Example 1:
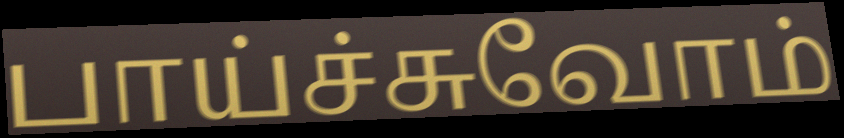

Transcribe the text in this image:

பாய்ச்சுவோம்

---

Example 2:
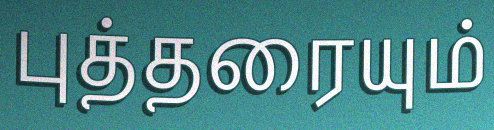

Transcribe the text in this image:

புத்தரையும்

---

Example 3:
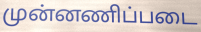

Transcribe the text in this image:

முன்னணிப்படை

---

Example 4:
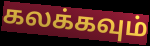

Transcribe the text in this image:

கலக்கவும்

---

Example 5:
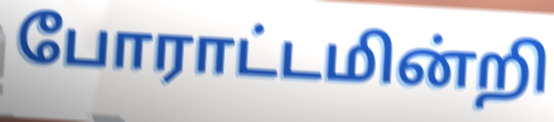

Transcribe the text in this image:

போராட்டமின்றி